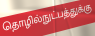
தொழில்நுட்பத்துக்கு